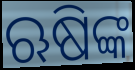
ଋଷିଙ୍କ